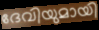
ദേവിയുമായി